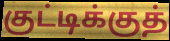
குட்டிக்குத்